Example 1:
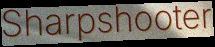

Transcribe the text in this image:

Sharpshooter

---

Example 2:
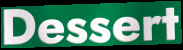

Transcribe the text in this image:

Dessert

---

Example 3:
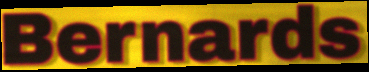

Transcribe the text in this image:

Bernards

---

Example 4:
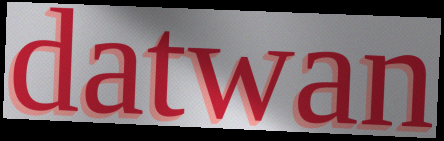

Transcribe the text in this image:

datwan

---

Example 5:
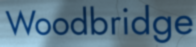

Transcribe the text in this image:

Woodbridge